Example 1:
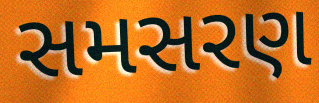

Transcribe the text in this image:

સમસરણ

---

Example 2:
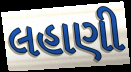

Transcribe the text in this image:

લહાણી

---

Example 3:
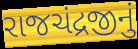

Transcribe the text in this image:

રાજચંદ્રજીનું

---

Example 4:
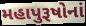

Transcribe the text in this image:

મહાપુરૂષોનાં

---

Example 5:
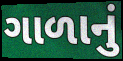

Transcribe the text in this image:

ગાળાનું